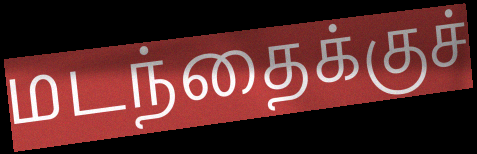
மடந்தைக்குச்